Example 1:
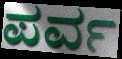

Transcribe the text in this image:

ಪರ್ವ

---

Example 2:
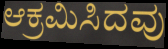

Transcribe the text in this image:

ಆಕ್ರಮಿಸಿದವು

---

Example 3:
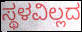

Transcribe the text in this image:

ಸ್ಥಳವಿಲ್ಲದ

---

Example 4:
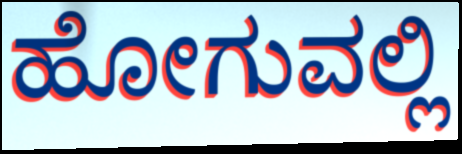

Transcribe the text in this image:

ಹೋಗುವಲ್ಲಿ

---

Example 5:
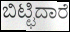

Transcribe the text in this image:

ಬಿಟ್ಟಿದಾರೆ